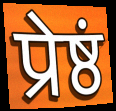
प्रेष्ठं